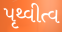
પૃથ્વીત્વ